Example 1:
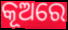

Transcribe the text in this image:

କୂଅରେ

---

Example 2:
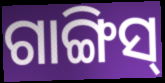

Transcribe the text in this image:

ଗାଙ୍ଗିସ୍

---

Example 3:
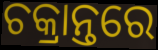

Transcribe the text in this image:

ଚକ୍ରାନ୍ତରେ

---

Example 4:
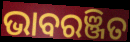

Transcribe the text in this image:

ଭାବରଞ୍ଜିତ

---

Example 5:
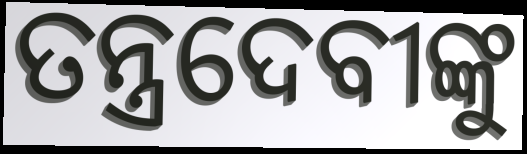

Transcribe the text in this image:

ତନ୍ତ୍ରଦେବୀଙ୍କୁ